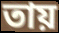
তায়